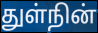
துள்நின்